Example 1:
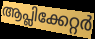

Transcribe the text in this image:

ആപ്ലിക്കേറ്റർ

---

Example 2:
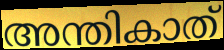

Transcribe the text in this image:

അന്തികാത്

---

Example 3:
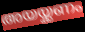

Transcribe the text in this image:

അയയ്ക്കണം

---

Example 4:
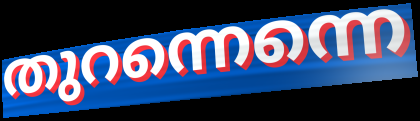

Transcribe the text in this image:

തുറന്നെന്നെ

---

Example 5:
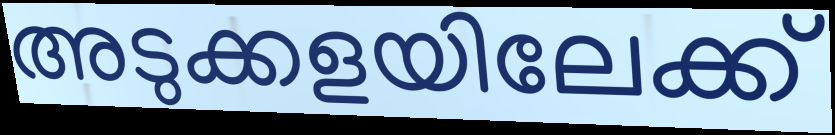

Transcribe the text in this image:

അടുക്കളയിലേക്ക്